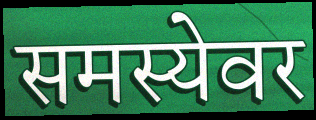
समस्येवर